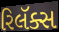
રિલૅક્સ